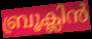
ബ്രൂക്ലിൻ